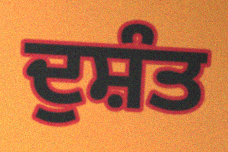
ਦੁਸ਼ੰਤ